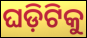
ଘଡ଼ିଟିକୁ